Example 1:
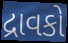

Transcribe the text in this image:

દ્રાવકો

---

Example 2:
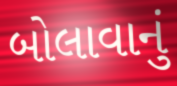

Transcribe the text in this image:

બોલાવાનું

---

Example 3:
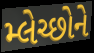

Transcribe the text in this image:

મ્લેચ્છોને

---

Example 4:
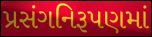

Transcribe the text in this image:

પ્રસંગનિરૂપણમાં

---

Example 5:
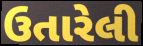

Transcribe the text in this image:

ઉતારેલી